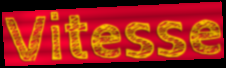
Vitesse